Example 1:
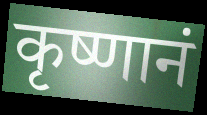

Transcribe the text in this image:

कृष्णानं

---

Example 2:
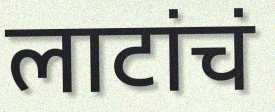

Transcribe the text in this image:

लाटांचं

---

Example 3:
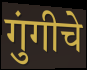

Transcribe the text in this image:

गुंगीचे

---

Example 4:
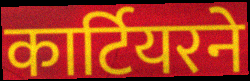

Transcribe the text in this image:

कार्टियरने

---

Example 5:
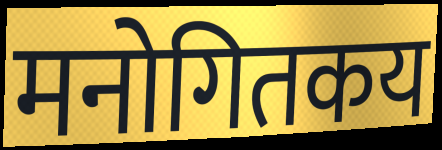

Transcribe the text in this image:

मनोगितकय